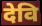
देवि